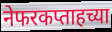
नेफरकप्ताहच्या